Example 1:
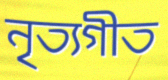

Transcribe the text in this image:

নৃত্যগীত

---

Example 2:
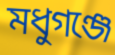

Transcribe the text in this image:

মধুগঞ্জে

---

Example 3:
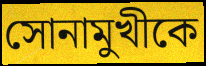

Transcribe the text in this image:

সোনামুখীকে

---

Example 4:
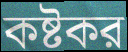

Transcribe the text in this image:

কষ্টকর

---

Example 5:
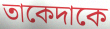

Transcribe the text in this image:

তাকেদাকে